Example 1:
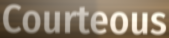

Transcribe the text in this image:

Courteous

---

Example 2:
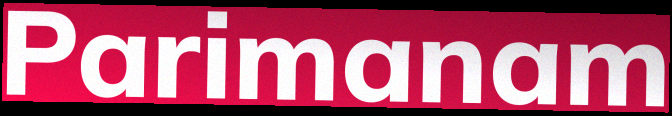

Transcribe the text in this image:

Parimanam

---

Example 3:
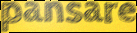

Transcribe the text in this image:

pansare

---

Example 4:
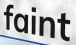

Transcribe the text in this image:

faint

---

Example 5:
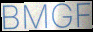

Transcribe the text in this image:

BMGF